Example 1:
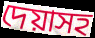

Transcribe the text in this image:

দেয়াসহ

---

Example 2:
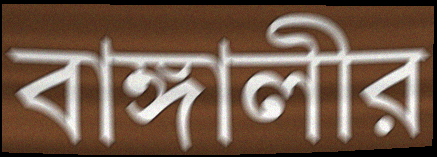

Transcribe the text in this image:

বাঙ্গালীর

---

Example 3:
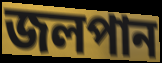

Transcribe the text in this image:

জলপান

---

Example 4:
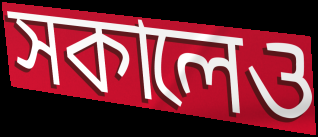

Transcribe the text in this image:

সকালেও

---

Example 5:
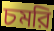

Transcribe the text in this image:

চমরি